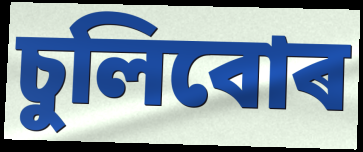
চুলিবোৰ